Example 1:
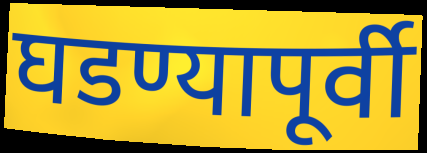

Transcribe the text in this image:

घडण्यापूर्वी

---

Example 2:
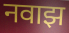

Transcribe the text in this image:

नवाझ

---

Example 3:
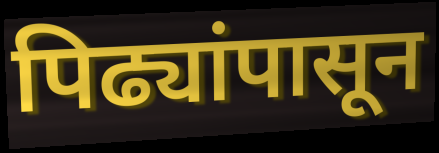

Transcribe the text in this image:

पिढ्यांपासून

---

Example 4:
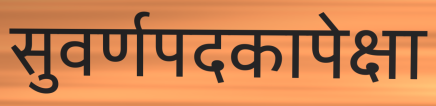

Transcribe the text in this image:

सुवर्णपदकापेक्षा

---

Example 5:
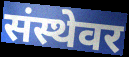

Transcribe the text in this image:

संस्थेवर